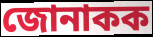
জোনাকক